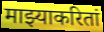
माझ्याकरितां